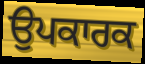
ਉਪਕਾਰਕ